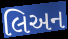
લિઅન